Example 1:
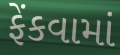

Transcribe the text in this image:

ફેંકવામાં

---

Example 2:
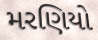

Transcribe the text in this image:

મરણિયો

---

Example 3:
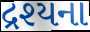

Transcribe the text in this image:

દ્રશ્યના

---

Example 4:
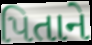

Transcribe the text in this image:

પિતાને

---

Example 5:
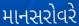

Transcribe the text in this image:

માનસરોવરે